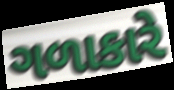
ગળાકારે